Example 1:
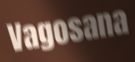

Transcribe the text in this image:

Vagosana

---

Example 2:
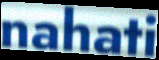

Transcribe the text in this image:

nahati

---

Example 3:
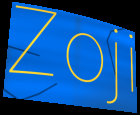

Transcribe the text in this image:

Zoji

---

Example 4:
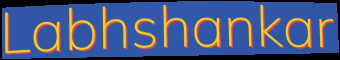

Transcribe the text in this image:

Labhshankar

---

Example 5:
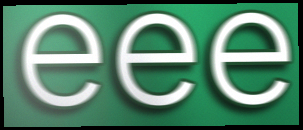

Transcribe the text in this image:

eee